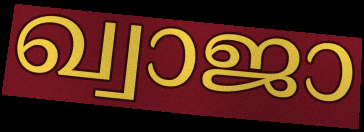
ഖ്വാജാ